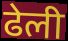
ढेली